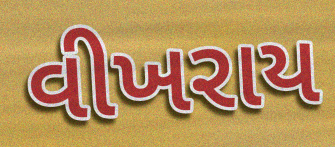
વીખરાય